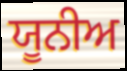
ਯੂਨੀਅ